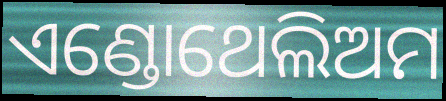
ଏଣ୍ଡୋଥେଲିଅମ